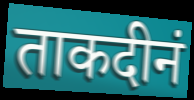
ताकदीनं